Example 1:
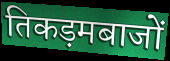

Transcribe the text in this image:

तिकड़मबाजों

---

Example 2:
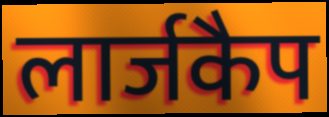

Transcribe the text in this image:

लार्जकैप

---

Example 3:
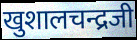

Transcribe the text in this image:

खुशालचन्द्रजी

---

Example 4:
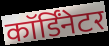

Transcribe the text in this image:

कॉर्डिंनेटर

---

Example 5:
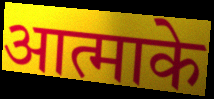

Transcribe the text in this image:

आत्माके